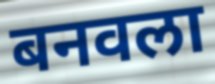
बनवला